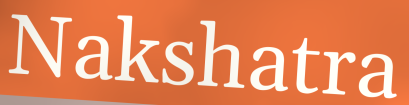
Nakshatra